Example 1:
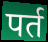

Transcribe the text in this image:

पर्त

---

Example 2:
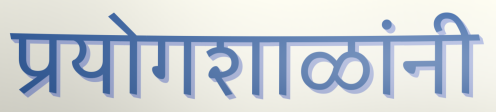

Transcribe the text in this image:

प्रयोगशाळांनी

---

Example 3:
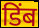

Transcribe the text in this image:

डिंब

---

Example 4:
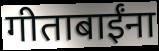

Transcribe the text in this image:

गीताबाईंना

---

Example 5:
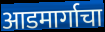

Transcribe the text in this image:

आडमार्गाचा